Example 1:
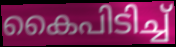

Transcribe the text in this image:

കൈപിടിച്ച്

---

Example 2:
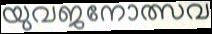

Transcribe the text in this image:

യുവജനോത്സവ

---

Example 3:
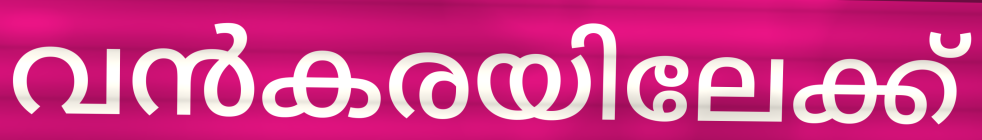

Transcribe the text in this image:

വൻകരയിലേക്ക്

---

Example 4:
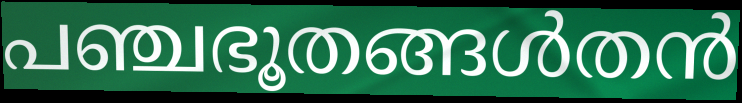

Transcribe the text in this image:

പഞ്ചഭൂതങ്ങൾതൻ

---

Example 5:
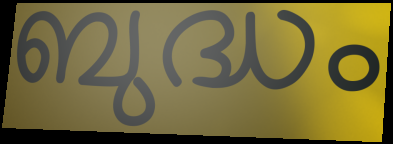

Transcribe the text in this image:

ബുദ്ധം